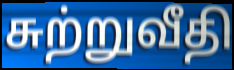
சுற்றுவீதி